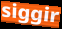
siggir